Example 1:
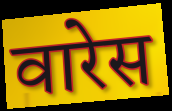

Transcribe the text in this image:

वारेस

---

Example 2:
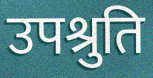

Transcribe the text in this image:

उपश्रुति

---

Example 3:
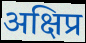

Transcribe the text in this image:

अक्षिप्र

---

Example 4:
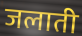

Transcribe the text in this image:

जलाती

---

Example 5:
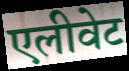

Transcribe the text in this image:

एलीवेट